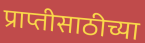
प्राप्तीसाठीच्या